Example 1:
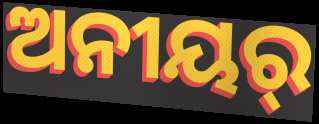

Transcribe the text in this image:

ଅନୀୟର୍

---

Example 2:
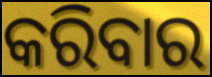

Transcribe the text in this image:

କରିବାର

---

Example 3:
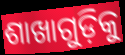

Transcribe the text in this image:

ଶାଖାଗୁଡ଼ିକୁ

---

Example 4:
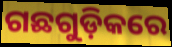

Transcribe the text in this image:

ଗଛଗୁଡ଼ିକରେ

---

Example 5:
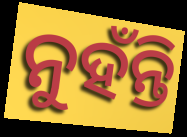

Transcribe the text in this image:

ନୁହଁନ୍ତି